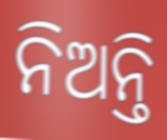
ନିଅନ୍ତି